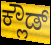
ಕ್ಲೌಡ್